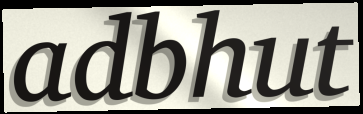
adbhut